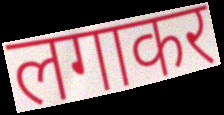
लगाकर